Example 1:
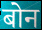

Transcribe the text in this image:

बोन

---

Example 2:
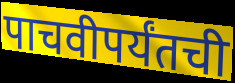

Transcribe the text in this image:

पाचवीपर्यंतची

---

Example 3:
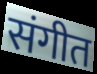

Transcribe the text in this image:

संगीत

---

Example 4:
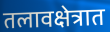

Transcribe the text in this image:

तलावक्षेत्रात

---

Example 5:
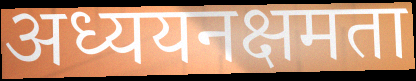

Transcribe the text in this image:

अध्ययनक्षमता